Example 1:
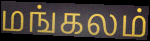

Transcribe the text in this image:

மங்கலம்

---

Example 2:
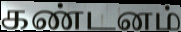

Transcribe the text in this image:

கண்டனம்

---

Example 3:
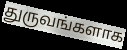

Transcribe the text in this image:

துருவங்களாக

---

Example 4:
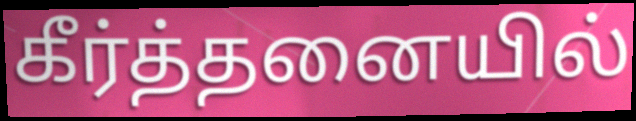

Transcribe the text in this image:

கீர்த்தனையில்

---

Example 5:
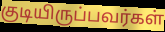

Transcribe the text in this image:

குடியிருப்பவர்கள்